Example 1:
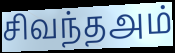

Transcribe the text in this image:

சிவந்தஅம்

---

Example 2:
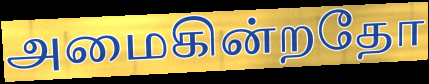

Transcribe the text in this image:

அமைகின்றதோ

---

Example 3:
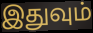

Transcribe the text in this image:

இதுவும்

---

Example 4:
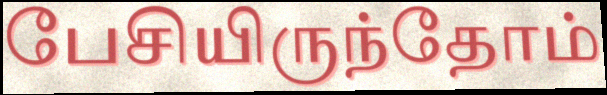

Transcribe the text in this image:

பேசியிருந்தோம்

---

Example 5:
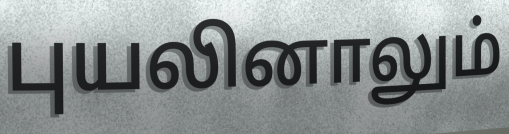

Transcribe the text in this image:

புயலினாலும்